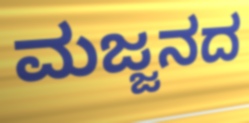
ಮಜ್ಜನದ